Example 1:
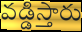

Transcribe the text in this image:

వడ్డిస్తారు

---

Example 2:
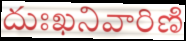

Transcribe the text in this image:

దుఃఖనివారిణి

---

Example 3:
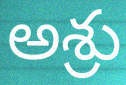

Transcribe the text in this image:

అశ్రు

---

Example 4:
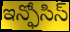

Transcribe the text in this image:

ఇన్ఫోసిస్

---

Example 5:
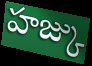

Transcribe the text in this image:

హజ్కు